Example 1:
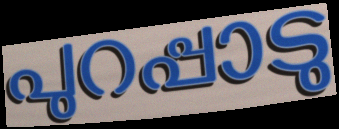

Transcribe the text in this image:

പുറപ്പാടു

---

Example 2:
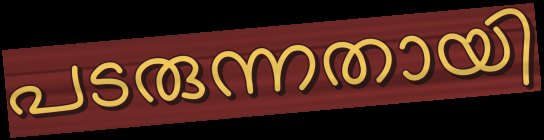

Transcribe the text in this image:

പടരുന്നതായി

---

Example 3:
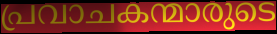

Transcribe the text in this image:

പ്രവാചകന്മാരുടെ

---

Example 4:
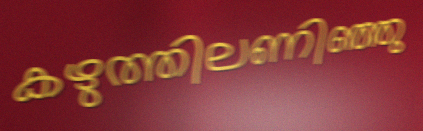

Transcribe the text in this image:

കഴുത്തിലണിഞ്ഞു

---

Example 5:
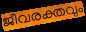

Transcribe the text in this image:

ജീവരക്തവും